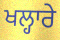
ਖਲ੍ਹਾਰੇ